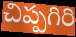
చిప్పగిరి